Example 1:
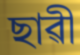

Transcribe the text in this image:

ছাৱী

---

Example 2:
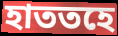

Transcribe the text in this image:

হাততহে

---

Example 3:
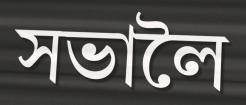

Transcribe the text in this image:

সভালৈ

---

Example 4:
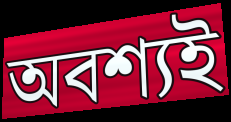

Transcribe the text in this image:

অবশ্যই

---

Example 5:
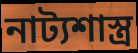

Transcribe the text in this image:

নাট্যশাস্ত্ৰ